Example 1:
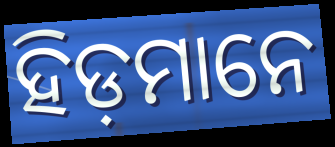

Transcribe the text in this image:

ହିଡ଼ମାନେ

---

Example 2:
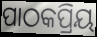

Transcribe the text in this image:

ପାଠକପ୍ରିୟ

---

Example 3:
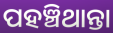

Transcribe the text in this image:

ପହଞ୍ଚିଥାନ୍ତା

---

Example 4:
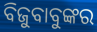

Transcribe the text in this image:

ବିଜୁବାବୁଙ୍କର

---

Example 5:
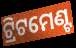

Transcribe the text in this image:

ଟ୍ରିଟମେଣ୍ଟ